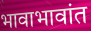
भावाभावांत